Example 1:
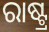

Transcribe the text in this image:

ରାଷ୍ଟ୍ର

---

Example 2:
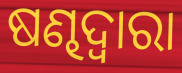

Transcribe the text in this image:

ଷଣ୍ଢଦ୍ୱାରା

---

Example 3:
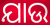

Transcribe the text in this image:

ଯାଉ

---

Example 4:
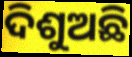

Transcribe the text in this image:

ଦିଶୁଅଛି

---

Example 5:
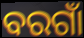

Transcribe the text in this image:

ବରଗାଁ